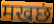
मखछं